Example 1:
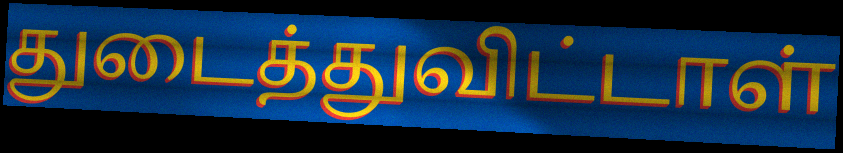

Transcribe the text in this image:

துடைத்துவிட்டாள்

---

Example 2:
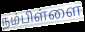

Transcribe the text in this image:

நம்பிள்ளை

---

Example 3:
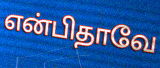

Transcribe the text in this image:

என்பிதாவே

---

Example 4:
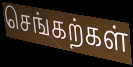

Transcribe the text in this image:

செங்கற்கள்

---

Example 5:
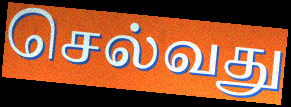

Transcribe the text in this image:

செல்வது